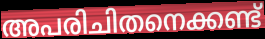
അപരിചിതനെക്കണ്ട്